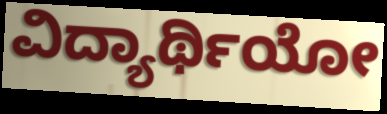
ವಿದ್ಯಾರ್ಥಿಯೋ